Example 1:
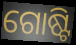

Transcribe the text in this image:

ଗୋଷ୍ଟି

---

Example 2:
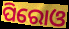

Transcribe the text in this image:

ପିରୋଓ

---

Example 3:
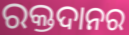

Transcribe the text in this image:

ରକ୍ତଦାନର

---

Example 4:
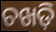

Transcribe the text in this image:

ଚଖଡ଼ି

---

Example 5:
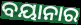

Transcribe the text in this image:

ବୟାନାର